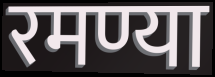
रमण्या